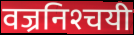
वज्रनिश्चयी